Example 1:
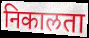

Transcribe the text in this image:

निकालता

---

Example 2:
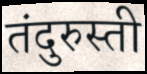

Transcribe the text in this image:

तंदुरुस्ती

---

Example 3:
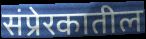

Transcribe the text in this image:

संप्रेरकातील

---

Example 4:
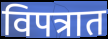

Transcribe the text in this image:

विपत्रात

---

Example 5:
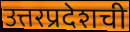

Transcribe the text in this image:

उत्तरप्रदेशची